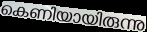
കെണിയായിരുന്നു